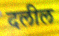
दलील